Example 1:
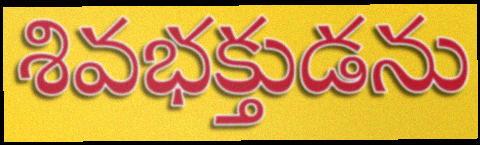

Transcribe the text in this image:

శివభక్తుడను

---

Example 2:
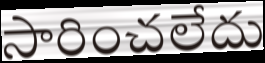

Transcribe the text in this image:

సారించలేదు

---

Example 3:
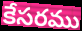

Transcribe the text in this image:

కేసరము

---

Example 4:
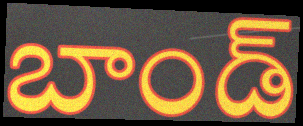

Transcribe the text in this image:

బాండ్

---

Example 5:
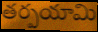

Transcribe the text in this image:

తర్పయామి